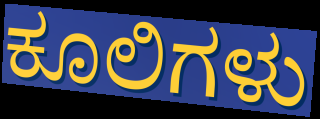
ಕೂಲಿಗಳು